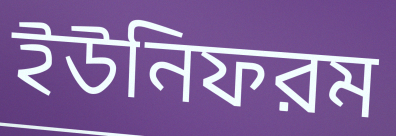
ইউনিফরম